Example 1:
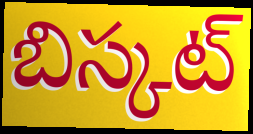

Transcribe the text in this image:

బిస్కట్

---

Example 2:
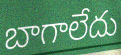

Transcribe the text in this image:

బాగాలేదు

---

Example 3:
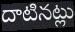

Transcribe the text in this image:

దాటినట్లు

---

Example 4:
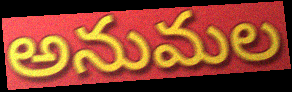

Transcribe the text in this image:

అనుమల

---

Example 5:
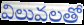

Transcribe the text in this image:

విలువలతో